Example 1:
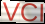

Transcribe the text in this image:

VCI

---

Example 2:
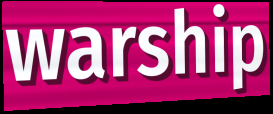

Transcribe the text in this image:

warship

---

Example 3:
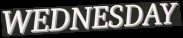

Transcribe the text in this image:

WEDNESDAY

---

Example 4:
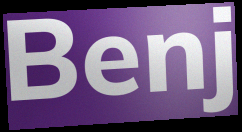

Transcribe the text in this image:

Benj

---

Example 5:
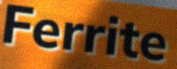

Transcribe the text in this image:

Ferrite